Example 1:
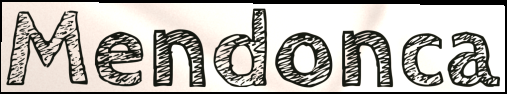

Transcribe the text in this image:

Mendonca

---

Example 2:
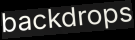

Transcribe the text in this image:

backdrops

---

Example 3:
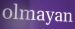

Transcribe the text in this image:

olmayan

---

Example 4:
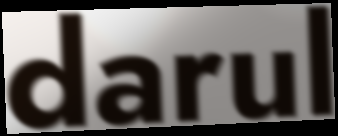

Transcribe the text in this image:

darul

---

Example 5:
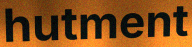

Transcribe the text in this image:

hutment